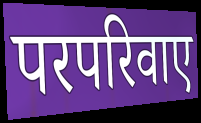
परपरिवाए